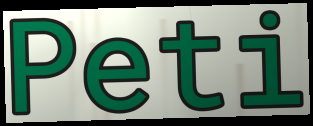
Peti